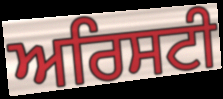
ਅਰਿਸਟੀ